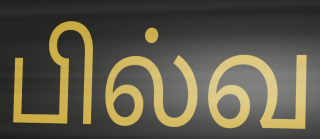
பில்வ